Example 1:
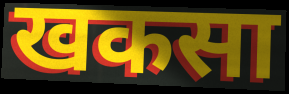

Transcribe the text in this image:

खकसा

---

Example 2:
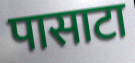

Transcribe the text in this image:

पासाटा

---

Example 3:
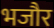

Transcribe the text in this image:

भजौर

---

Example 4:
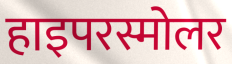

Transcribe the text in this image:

हाइपरस्मोलर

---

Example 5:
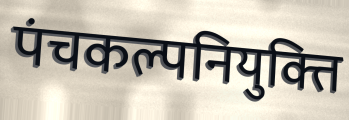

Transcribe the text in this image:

पंचकल्पनियुक्ति